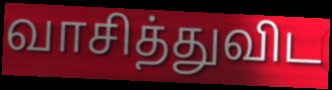
வாசித்துவிட